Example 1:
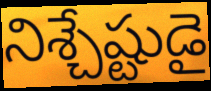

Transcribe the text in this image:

నిశ్చేష్టుడై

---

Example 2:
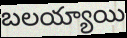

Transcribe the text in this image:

బలయ్యాయి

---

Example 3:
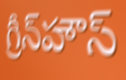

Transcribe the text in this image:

గ్రీన్‌హౌస్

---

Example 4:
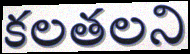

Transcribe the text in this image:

కలతలని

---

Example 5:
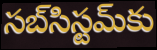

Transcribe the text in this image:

సబ్‌సిస్టమ్‌కు